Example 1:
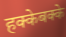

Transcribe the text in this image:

हक्केबक्के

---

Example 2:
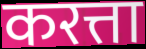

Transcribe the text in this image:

करत्ता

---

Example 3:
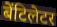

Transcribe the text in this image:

बेंटिलेटर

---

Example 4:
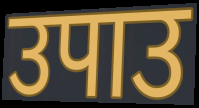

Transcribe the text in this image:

उपाउ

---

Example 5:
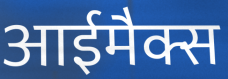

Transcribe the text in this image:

आईमैक्स